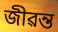
জীৱন্ত